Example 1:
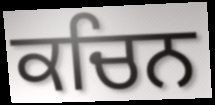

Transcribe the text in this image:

ਕਚਿਨ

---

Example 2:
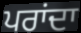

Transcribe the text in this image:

ਪਰਾਂਦਾ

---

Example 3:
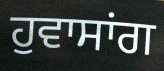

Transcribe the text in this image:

ਹੁਵਾਸਾਂਗ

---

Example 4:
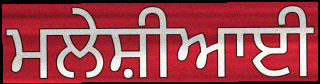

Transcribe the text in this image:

ਮਲੇਸ਼ੀਆਈ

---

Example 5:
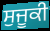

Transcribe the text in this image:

ਸੁਜੂਕੀ